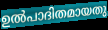
ഉൽപാദിതമായതു